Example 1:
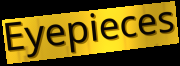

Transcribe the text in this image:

Eyepieces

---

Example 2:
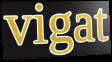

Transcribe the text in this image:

vigat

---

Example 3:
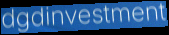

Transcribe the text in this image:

dgdinvestment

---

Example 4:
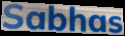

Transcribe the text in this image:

Sabhas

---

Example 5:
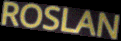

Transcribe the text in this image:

ROSLAN